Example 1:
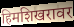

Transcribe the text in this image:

हिमशिखरावर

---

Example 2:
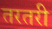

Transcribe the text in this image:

तरतरी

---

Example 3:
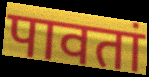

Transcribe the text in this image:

पावतां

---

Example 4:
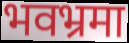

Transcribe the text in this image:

भवभ्रमा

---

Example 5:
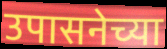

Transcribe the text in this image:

उपासनेच्या